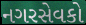
નગરસેવકો